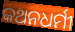
କଥନଧର୍ମୀ